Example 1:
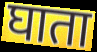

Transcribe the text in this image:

घाता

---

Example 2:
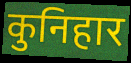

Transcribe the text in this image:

कुनिहार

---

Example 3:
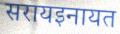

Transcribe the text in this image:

सरायइनायत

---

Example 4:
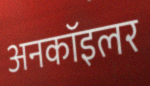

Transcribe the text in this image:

अनकॉइलर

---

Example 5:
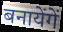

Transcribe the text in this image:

बनायेंगें